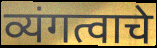
व्यंगत्वाचे